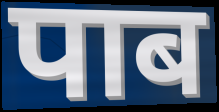
पाब